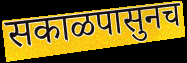
सकाळपासुनच